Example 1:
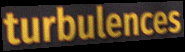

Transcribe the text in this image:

turbulences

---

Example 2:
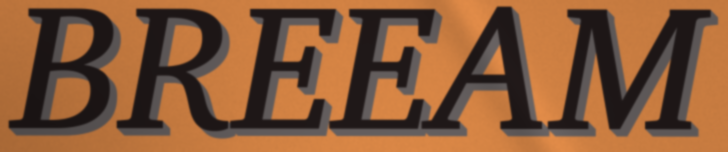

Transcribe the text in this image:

BREEAM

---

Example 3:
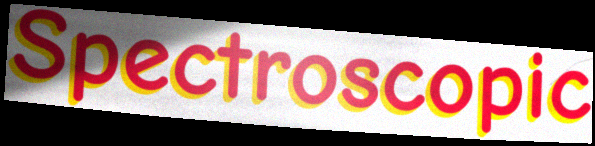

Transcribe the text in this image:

Spectroscopic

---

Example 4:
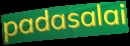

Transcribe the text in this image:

padasalai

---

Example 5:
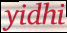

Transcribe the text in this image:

yidhi